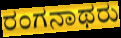
ರಂಗನಾಥರು